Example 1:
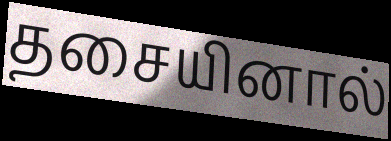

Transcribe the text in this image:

தசையினால்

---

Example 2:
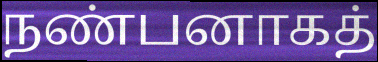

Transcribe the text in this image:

நண்பனாகத்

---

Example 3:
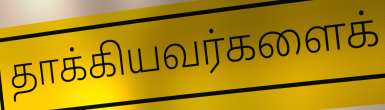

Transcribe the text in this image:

தாக்கியவர்களைக்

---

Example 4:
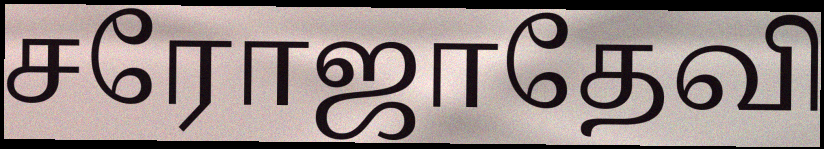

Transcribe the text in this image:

சரோஜாதேவி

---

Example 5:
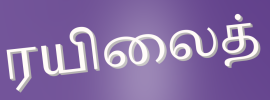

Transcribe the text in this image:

ரயிலைத்